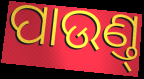
ପାଉଣ୍ତ୍